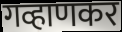
गव्हाणकर